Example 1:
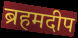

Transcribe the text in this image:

ब्रहमदीप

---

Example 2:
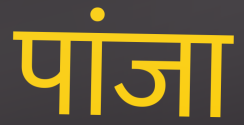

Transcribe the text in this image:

पांजा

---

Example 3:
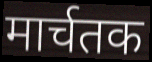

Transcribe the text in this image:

मार्चतक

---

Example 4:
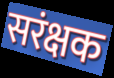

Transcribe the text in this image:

सरंक्षक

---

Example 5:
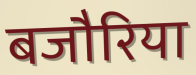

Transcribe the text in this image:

बजौरिया